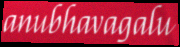
anubhavagalu